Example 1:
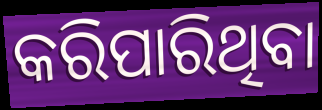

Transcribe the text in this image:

କରିପାରିଥିବା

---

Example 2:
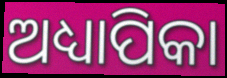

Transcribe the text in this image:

ଅଧ୍ୟାପିକା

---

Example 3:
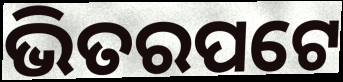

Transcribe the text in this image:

ଭିତରପଟେ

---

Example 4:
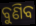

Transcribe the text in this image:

ବୁଣିବ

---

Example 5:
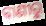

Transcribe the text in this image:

ବାଣୀରୁ